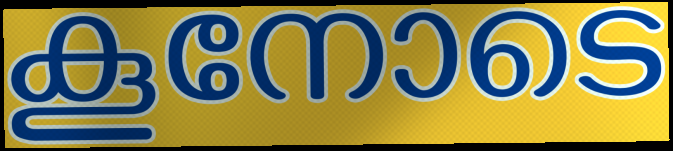
കൂനോടെ